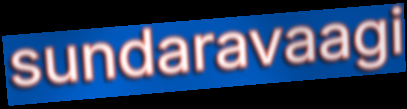
sundaravaagi